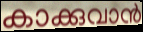
കാക്കുവാൻ